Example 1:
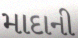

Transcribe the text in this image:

માદાની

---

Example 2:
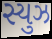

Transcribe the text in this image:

સ્યુઝ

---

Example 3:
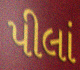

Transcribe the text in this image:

પીલાં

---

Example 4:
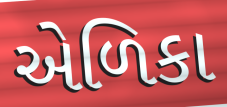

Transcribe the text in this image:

એળિકા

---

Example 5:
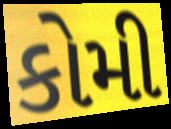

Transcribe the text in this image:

કોમી